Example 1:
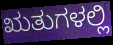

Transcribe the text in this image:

ಋತುಗಳಲ್ಲಿ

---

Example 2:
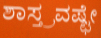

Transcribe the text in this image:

ಶಾಸ್ತ್ರವಷ್ಟೇ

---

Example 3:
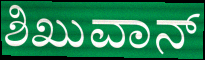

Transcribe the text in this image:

ಶಿಖುವಾನ್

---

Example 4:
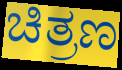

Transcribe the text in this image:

ಚಿತ್ರಣ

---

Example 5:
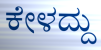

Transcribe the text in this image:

ಕೇಳದ್ದು